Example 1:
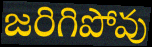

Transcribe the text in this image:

జరిగిపోవు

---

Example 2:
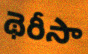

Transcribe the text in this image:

థెరీసా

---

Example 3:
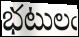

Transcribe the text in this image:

భటులఁ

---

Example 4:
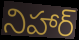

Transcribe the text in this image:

నిహార్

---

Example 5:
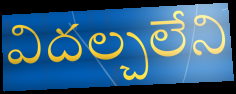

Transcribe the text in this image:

విదల్చలేని